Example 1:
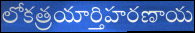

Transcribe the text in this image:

లోకత్రయార్తిహరణాయ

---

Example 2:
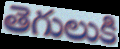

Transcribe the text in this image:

తెగులుకి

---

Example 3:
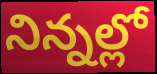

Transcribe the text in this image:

నిన్నల్లో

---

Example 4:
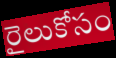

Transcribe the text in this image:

రైలుకోసం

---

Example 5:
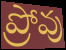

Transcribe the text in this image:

ప్రోవు